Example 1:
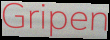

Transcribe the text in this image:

Gripen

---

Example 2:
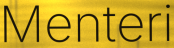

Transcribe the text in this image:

Menteri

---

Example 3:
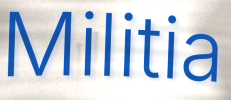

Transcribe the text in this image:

Militia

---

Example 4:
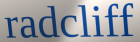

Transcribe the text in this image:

radcliff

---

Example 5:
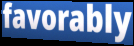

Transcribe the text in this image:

favorably